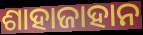
ଶାହାଜାହାନ